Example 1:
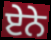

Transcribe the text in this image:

ਏੇਨੇ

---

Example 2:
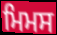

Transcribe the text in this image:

ਮਿਮਸ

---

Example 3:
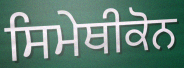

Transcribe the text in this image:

ਸਿਮੇਥੀਕੋਨ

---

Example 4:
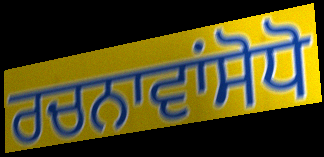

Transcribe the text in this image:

ਰਚਨਾਵਾਂਸੋਧੋ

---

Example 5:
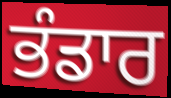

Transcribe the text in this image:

ਭੰਡਾਰ